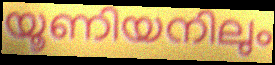
യൂണിയനിലും